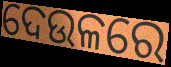
ଦେଉଳରେ